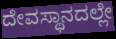
ದೇವಸ್ಥಾನದಲ್ಲೇ